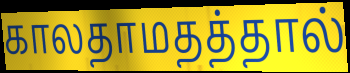
காலதாமதத்தால்